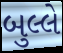
બુલ્લે